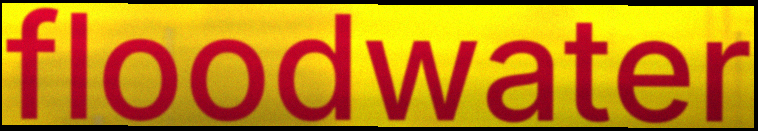
floodwater